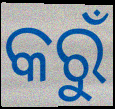
କରୁଁ